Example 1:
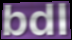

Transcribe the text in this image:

bdl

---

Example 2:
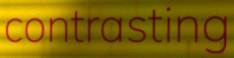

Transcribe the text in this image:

contrasting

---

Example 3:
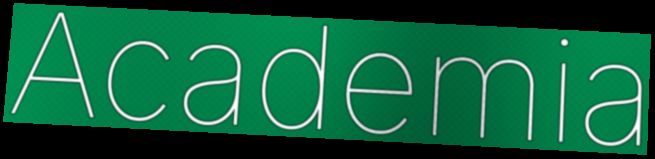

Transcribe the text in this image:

Academia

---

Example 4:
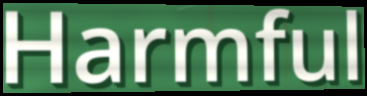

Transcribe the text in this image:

Harmful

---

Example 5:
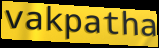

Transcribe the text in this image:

vakpatha